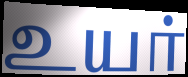
உயர்